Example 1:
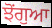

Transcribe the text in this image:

ਝੋਂਗੁਆ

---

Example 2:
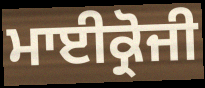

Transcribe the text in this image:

ਮਾਈਕ੍ਰੋਜੀ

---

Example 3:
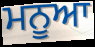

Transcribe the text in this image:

ਮਨੂਆ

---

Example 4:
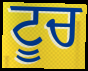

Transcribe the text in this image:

ਟੂਚ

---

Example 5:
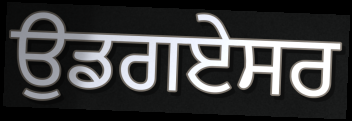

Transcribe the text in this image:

ਉਡਗਏਸਰ